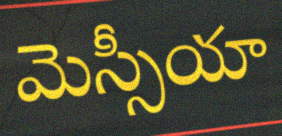
మెస్సీయా